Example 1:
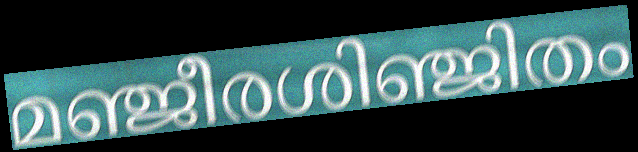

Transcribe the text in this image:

മഞ്ജീരശിഞ്ജിതം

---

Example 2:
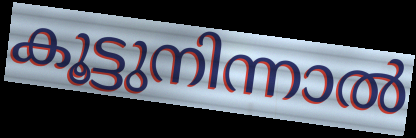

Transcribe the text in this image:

കൂട്ടുനിന്നാൽ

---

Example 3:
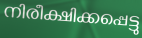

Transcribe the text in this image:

നിരീക്ഷിക്കപ്പെട്ടു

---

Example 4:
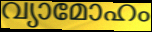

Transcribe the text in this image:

വ്യാമോഹം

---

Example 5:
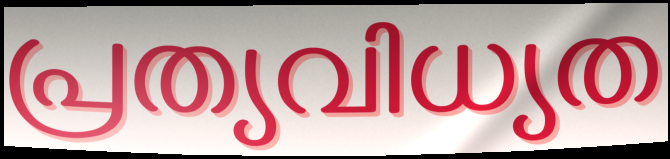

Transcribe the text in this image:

പ്രത്യവിധ്യത